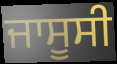
ਜਾਸੂਸੀ